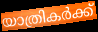
യാത്രികർക്ക്